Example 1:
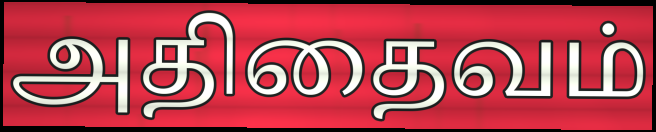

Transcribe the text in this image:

அதிதைவம்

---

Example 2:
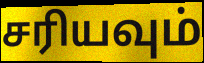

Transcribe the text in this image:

சரியவும்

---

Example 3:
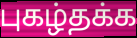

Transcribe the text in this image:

புகழ்தக்க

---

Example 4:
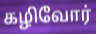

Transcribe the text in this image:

கழிவோர்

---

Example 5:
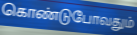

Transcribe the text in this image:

கொண்டுபோவதும்